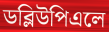
ডব্লিউপিএলে